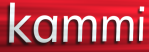
kammi